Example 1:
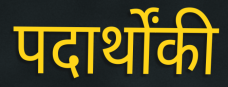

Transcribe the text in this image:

पदार्थोंकी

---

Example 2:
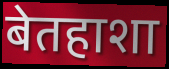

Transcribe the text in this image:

बेतहाशा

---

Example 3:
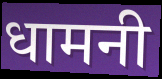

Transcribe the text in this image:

धामनी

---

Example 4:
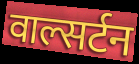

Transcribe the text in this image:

वाल्सर्टन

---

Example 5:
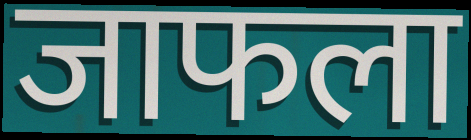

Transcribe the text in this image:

जाफला